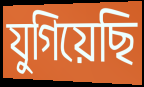
যুগিয়েছি